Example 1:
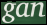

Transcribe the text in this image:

gan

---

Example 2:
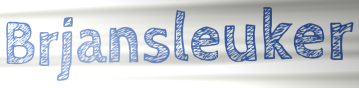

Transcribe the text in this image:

Brjansleuker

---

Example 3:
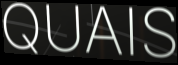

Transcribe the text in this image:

QUAIS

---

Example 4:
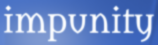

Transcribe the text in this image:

impunity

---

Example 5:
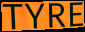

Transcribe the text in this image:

TYRE